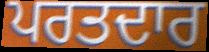
ਪਰਤਦਾਰ